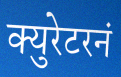
क्युरेटरनं